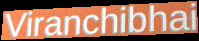
Viranchibhai